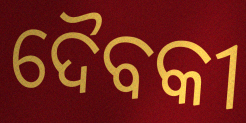
ଦୈବକୀ